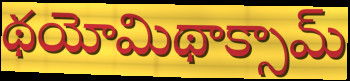
థయోమిథాక్సామ్